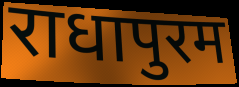
राधापुरम